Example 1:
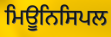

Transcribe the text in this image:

ਮਿਊਨਿਸਿਪਲ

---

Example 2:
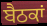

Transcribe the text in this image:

ਬੈਠਕਾਂ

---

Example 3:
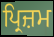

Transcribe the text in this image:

ਪ੍ਰਿਜ਼ਮ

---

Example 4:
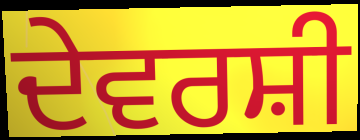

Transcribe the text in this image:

ਦੇਵਰਸ਼ੀ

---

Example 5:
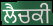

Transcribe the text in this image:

ਲੈਚਕੀ